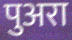
पुअरा